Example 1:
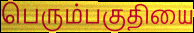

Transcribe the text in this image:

பெரும்பகுதியை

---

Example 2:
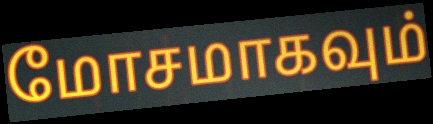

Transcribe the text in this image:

மோசமாகவும்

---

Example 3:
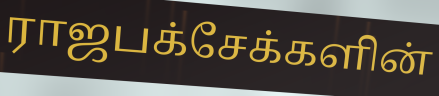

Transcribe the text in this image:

ராஜபக்சேக்களின்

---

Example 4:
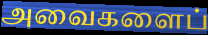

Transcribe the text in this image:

அவைகளைப்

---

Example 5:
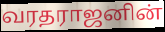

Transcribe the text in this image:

வரதராஜனின்